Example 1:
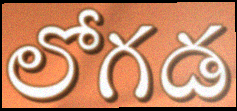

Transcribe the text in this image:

లోగడ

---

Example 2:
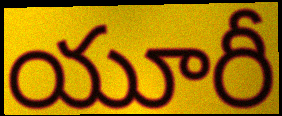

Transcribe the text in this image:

యూరీ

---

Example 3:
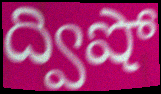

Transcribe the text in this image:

ద్విషో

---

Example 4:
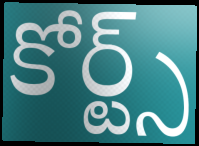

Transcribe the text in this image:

కోర్ట్స్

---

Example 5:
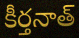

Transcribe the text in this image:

కీర్తనాత్